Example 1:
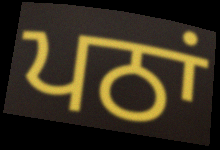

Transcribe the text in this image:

ਪਠਾਂ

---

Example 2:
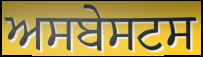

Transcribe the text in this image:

ਅਸਬੇਸਟਸ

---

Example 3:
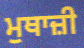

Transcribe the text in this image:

ਮੁਥਾਜ਼ੀ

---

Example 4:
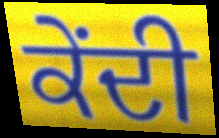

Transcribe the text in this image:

ਕੇਂਦੀ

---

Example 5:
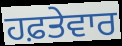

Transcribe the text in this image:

ਹਫ਼ਤੇਵਾਰ